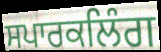
ਸਪਾਰਕਲਿੰਗ